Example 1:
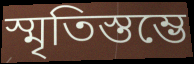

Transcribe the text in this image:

স্মৃতিস্তম্ভে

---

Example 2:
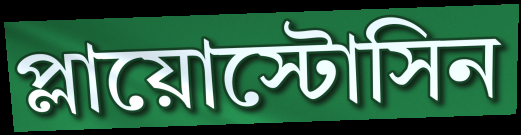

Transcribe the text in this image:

প্লায়োস্টোসিন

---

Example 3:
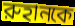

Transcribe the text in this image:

রুহানকে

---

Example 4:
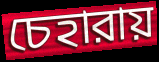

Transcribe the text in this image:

চেহারায়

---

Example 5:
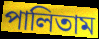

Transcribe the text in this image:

পালিতাম